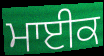
ਮਾਈਕ